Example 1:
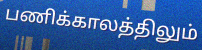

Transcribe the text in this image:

பணிக்காலத்திலும்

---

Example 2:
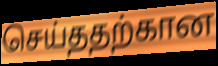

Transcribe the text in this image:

செய்ததற்கான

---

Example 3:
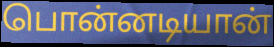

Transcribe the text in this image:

பொன்னடியான்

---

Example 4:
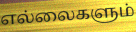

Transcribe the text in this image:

எல்லைகளும்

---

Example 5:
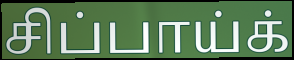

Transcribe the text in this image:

சிப்பாய்க்